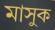
মাসুক